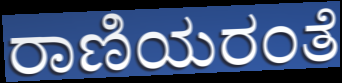
ರಾಣಿಯರಂತೆ